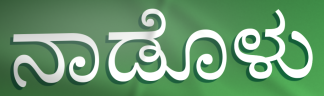
ನಾಡೊಳು